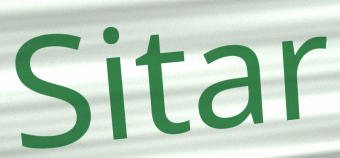
Sitar